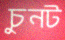
চুনট